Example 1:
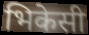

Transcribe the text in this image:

भिकेसी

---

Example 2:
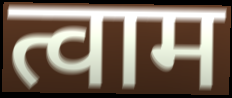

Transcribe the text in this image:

त्वाम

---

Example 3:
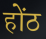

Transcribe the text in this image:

होंठ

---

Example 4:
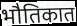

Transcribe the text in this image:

भौतिकात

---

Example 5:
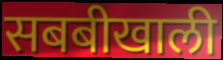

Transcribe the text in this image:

सबबीखाली